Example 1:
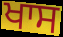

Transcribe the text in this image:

ਖਾਸ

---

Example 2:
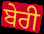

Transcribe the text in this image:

ਬੇਰੀ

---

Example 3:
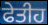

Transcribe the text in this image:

ਫੇਤੀਹ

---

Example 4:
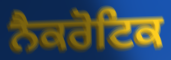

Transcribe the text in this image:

ਨੈਕਰੋਟਿਕ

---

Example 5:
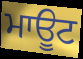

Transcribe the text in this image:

ਮਾਊਟ